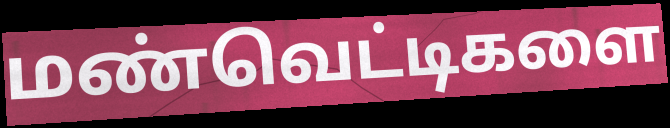
மண்வெட்டிகளை